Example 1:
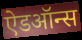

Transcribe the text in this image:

ऐडऑन्स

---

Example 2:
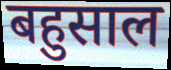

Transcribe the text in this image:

बहुसाल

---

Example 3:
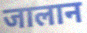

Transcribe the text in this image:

जालान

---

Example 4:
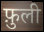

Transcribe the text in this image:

फ़ुली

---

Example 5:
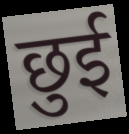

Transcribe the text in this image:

छुई